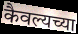
कैवल्यच्या